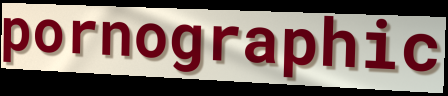
pornographic